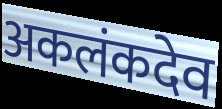
अकलंकदेव